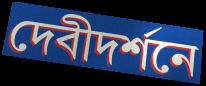
দেবীদর্শনে